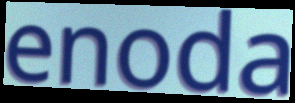
enoda